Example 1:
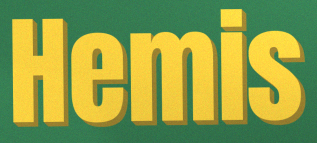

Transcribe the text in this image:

Hemis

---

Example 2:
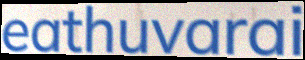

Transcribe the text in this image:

eathuvarai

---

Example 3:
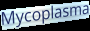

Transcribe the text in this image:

Mycoplasma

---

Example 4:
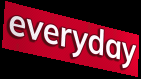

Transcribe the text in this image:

everyday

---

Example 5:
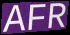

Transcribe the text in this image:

AFR